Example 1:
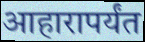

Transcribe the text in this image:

आहारापर्यंत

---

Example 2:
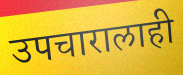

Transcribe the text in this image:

उपचारालाही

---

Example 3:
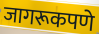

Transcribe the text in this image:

जागरूकपणे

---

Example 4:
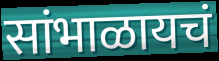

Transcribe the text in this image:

सांभाळायचं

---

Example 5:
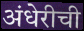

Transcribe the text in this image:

अंधेरीची